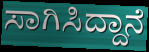
ಸಾಗಿಸಿದ್ದಾನೆ